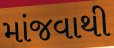
માંજવાથી